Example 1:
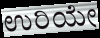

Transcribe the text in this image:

ಉರಿಯೇ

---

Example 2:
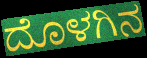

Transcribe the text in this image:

ದೊಳಗಿನ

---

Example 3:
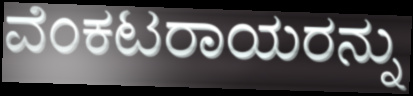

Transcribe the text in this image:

ವೆಂಕಟರಾಯರನ್ನು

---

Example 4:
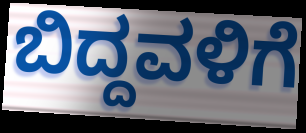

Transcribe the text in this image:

ಬಿದ್ದವಳಿಗೆ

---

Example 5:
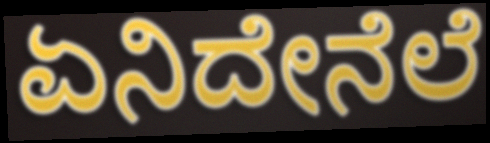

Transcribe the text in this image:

ಏನಿದೇನೆಲೆ